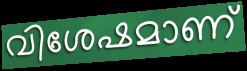
വിശേഷമാണ്